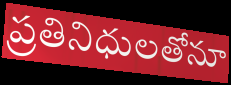
ప్రతినిధులతోనూ